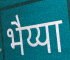
भैय्या